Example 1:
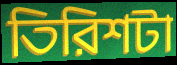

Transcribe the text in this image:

তিরিশটা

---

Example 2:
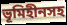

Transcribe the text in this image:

ভূমিহীনসহ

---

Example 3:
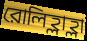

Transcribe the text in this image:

রোলিহ্লাহ্লা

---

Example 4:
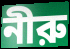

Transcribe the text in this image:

নীরু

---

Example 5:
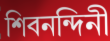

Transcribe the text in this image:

শিবনন্দিনী